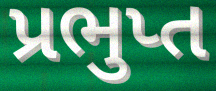
પ્રભુપ્ત